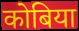
कोबिया